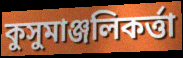
কুসুমাঞ্জলিকর্ত্তা